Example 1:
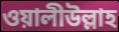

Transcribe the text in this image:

ওয়ালীউল্লাহ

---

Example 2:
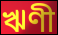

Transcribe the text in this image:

ঋণী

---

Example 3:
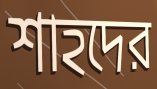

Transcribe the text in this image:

শাহদের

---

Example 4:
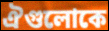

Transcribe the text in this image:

ঐগুলোকে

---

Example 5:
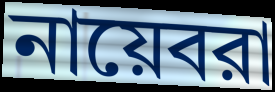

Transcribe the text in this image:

নায়েবরা